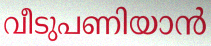
വീടുപണിയാൻ